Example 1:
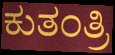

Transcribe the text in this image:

ಕುತಂತ್ರಿ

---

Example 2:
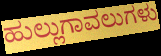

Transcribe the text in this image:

ಹುಲ್ಲುಗಾವಲುಗಳು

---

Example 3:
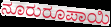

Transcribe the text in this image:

ನೂರುರೂಪಾಯಿ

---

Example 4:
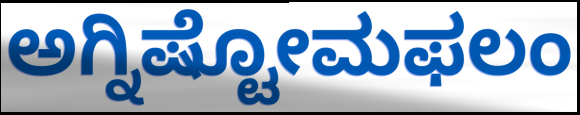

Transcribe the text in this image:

ಅಗ್ನಿಷ್ಟೋಮಫಲಂ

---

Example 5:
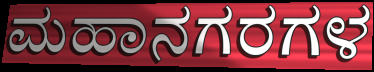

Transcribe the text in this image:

ಮಹಾನಗರಗಳ